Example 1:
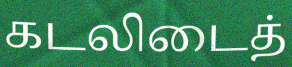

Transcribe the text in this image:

கடலிடைத்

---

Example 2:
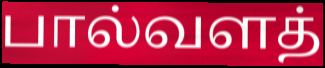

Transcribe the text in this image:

பால்வளத்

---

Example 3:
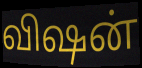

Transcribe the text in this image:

விஷன்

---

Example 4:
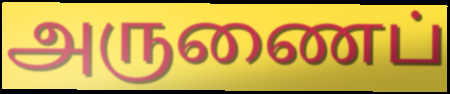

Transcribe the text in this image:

அருணைப்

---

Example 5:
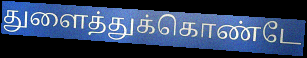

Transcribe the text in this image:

துளைத்துக்கொண்டே